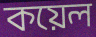
কয়েল